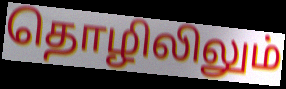
தொழிலிலும்